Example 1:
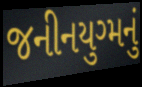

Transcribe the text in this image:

જનીનયુગ્મનું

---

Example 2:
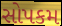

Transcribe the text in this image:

સોપકમ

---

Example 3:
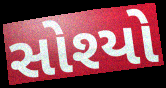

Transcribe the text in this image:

સોશ્યો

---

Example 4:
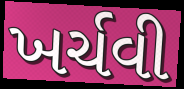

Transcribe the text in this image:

ખર્ચવી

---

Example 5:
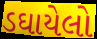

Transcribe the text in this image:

ડઘાયેલો